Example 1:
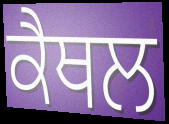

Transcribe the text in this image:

ਕੈਥਲ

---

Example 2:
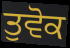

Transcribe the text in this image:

ਤੁਵੋਕ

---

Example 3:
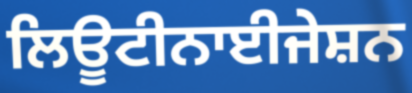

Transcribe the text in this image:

ਲਿਊਟੀਨਾਈਜੇਸ਼ਨ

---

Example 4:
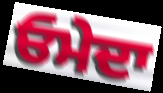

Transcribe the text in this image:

ਓਮੇਦਾ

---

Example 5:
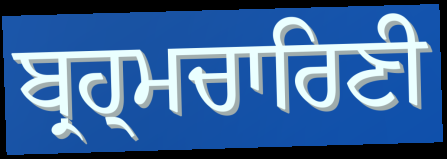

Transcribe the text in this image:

ਬ੍ਰਹ੍ਮਚਾਰਿਣੀ